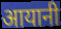
आयानी